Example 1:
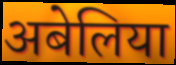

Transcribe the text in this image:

अबेलिया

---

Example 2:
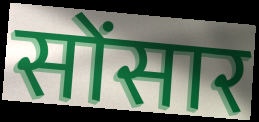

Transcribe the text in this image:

सोंसार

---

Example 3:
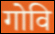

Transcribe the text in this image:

गोवि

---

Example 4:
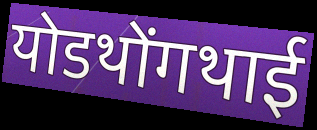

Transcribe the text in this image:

योडथोंगथाई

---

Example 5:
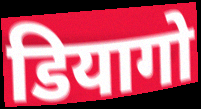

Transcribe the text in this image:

डियागो